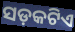
ସଡ଼କଟିଏ